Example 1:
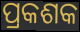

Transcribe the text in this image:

ପ୍ରକଶକ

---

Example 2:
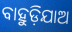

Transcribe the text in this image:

ବାହୁଡ଼ିଯାଅ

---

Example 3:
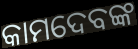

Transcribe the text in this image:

କାମଦେବଙ୍କ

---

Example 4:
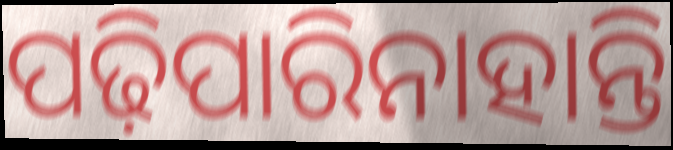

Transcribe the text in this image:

ପଢ଼ିପାରିନାହାନ୍ତି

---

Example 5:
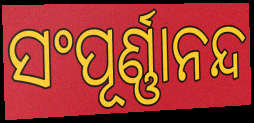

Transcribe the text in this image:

ସଂପୂର୍ଣ୍ଣାନନ୍ଦ